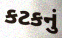
કટકનું